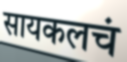
सायकलचं